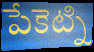
పేకెట్ని